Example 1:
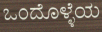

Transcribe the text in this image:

ಒಂದೊಳ್ಳೆಯ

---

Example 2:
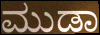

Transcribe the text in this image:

ಮುಡಾ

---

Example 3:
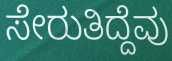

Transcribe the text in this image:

ಸೇರುತಿದ್ದೆವು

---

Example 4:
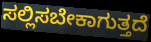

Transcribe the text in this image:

ಸಲ್ಲಿಸಬೇಕಾಗುತ್ತದೆ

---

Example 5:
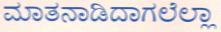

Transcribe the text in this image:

ಮಾತನಾಡಿದಾಗಲೆಲ್ಲಾ